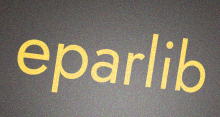
eparlib